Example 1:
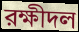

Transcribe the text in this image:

রক্ষীদল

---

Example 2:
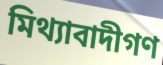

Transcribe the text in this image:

মিথ্যাবাদীগণ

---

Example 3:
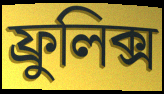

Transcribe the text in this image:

ফ্রুলিক্স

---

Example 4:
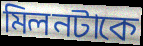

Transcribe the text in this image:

মিলনটাকে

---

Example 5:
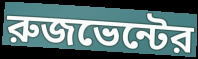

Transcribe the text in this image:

রুজভেন্টের